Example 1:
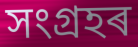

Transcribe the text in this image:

সংগ্ৰহৰ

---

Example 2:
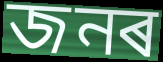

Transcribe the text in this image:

জনৰ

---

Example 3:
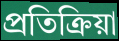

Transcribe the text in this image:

প্ৰতিক্ৰিয়া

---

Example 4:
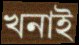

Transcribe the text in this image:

খনাই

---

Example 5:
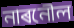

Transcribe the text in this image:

নাৰনৌল